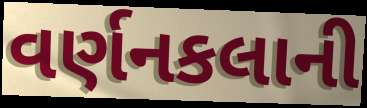
વર્ણનકલાની